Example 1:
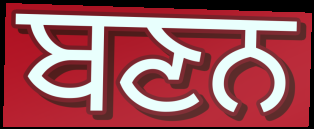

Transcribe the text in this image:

ਬਣਨ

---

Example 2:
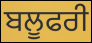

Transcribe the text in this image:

ਬਲੂਫਰੀ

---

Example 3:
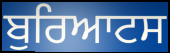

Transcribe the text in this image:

ਬੁਰਿਆਟਸ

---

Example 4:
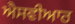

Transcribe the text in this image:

ਐਸਵੀਆਰ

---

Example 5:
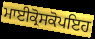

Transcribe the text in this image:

ਮਾਈਕ੍ਰੋਸਕੋਪਇਹ